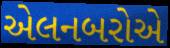
એલનબરોએ